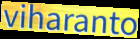
viharanto